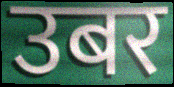
उबर